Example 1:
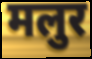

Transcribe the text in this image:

मलुर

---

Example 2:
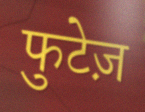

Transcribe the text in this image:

फुटेज़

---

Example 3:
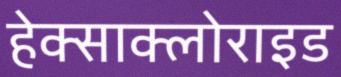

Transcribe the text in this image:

हेक्साक्लोराइड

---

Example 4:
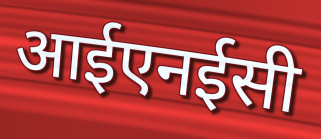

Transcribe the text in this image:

आईएनईसी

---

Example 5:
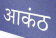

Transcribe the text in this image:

आकंठ